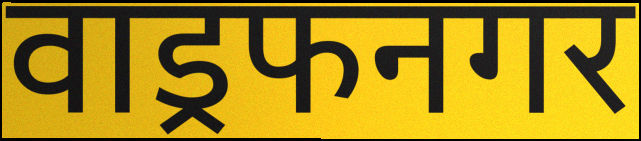
वाड्रफनगर